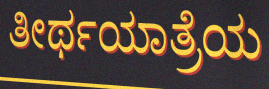
ತೀರ್ಥಯಾತ್ರೆಯ